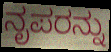
ನೃಪರನ್ನು